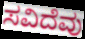
ಸವಿದೆವು